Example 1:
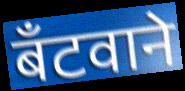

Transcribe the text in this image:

बँटवाने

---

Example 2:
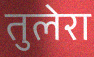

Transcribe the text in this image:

तुलेरा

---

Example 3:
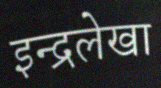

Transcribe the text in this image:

इन्द्रलेखा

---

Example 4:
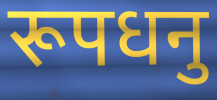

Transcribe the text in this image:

रूपधनु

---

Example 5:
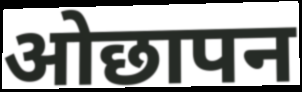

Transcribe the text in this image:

ओछापन